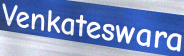
Venkateswara